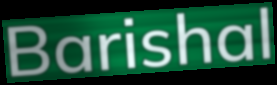
Barishal